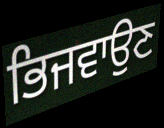
ਭਿਜਵਾਉਣ